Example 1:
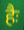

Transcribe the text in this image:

हैः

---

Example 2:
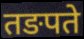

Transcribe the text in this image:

तङपते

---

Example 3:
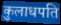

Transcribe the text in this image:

कुलाधपति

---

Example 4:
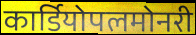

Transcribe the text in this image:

कार्डियोपलमोनरी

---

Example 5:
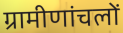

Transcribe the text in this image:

ग्रामीणांचलों